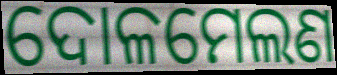
ଦୋଳମେଲଣ